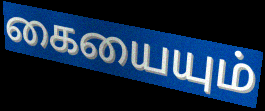
கையையும்